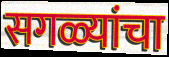
सगळ्यांचा